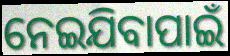
ନେଇଯିବାପାଇଁ